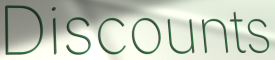
Discounts